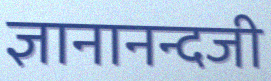
ज्ञानानन्दजी